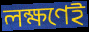
লক্ষণেই